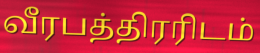
வீரபத்திரரிடம்